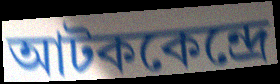
আটককেন্দ্রে